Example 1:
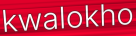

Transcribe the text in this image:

kwalokho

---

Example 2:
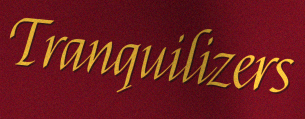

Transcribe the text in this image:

Tranquilizers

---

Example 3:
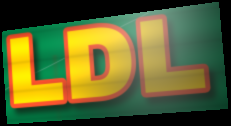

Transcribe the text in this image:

LDL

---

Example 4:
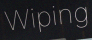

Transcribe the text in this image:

Wiping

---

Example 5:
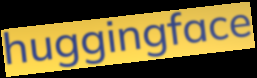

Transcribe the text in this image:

huggingface